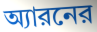
অ্যারনের